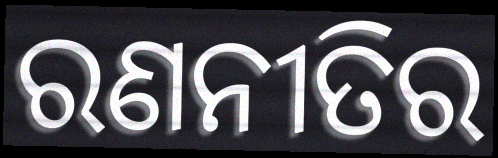
ରଣନୀତିର